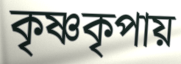
কৃষ্ণকৃপায়